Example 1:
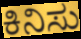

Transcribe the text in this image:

ಕಿನಿಸು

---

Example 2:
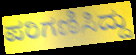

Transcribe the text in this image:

ಪರಿಗಣಿಸಿದ್ದು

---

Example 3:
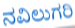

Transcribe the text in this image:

ನವಿಲುಗರಿ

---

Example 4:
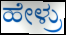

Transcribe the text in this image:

ಹೇಳ್ರು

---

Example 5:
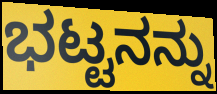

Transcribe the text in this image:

ಭಟ್ಟನನ್ನು